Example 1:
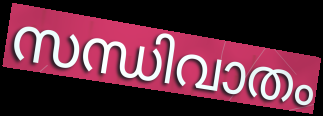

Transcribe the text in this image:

സന്ധിവാതം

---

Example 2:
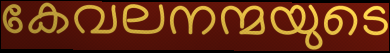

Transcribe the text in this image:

കേവലനന്മയുടെ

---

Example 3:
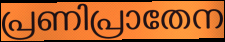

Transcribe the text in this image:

പ്രണിപ്രാതേന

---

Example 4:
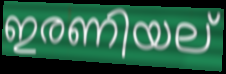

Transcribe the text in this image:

ഇരണിയല്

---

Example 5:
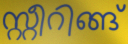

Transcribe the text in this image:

സ്റ്റീറിങ്ങ്